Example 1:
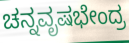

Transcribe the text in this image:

ಚನ್ನವೃಷಭೇಂದ್ರ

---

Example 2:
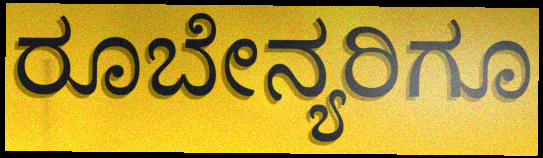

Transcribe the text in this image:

ರೂಬೇನ್ಯರಿಗೂ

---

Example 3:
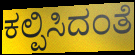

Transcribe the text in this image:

ಕಲ್ಪಿಸಿದಂತೆ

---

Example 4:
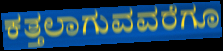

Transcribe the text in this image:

ಕತ್ತಲಾಗುವವರೆಗೂ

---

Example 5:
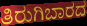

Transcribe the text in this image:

ತಿರುಗಿಬಾರದ